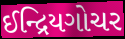
ઈન્દ્રિયગોચર